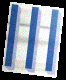
lll